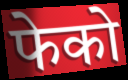
फेको